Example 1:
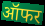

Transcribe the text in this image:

ऑफर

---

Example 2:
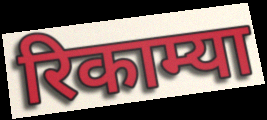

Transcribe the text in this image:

रिकाम्या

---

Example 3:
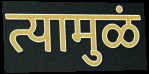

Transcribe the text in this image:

त्यामुळं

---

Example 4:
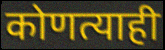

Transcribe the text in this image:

कोणत्याही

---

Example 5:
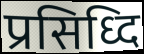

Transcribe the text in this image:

प्रसिध्दि